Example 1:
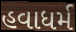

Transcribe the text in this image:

હવાધર્મ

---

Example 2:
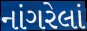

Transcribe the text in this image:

નાંગરેલાં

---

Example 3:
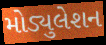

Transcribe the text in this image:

મોડ્યુલેશન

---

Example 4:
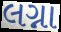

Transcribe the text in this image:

લગ્ના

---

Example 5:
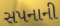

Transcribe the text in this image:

સપનાની